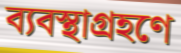
ব্যবস্থাগ্রহণে